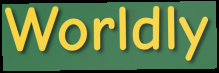
Worldly